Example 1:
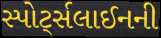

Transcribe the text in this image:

સ્પોર્ટ્સલાઈનની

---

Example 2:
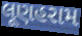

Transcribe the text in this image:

લૂણહરામ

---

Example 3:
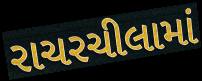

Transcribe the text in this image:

રાચરચીલામાં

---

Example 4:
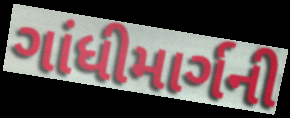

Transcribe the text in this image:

ગાંધીમાર્ગની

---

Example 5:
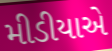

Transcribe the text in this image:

મીડીયાએ